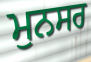
ਮੁਨਸਰ